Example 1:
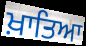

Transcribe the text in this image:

ਖ਼ਾਤਿਆ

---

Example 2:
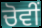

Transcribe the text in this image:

ਚੋਵੀਂ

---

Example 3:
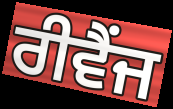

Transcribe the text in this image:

ਰੀਵੈਂਜ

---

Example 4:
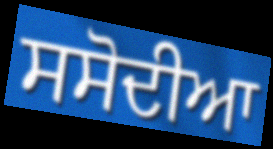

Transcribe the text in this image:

ਸਸੋਦੀਆ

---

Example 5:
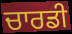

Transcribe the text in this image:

ਚਾਰਡੀ